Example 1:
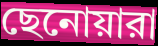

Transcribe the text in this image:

ছেনোয়ারা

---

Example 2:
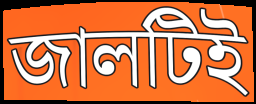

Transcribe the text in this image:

জালটিই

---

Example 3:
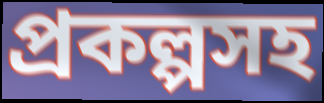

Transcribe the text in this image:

প্রকল্পসহ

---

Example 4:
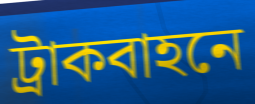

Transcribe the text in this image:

ট্রাকবাহনে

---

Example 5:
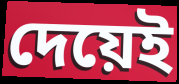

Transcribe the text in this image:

দেয়েই